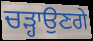
ਚੜ੍ਹਾਉਣਗੇ